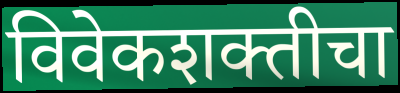
विवेकशक्तीचा